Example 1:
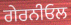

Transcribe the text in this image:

ਗੇਰਨੀਓਲ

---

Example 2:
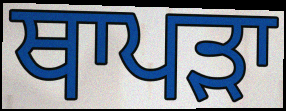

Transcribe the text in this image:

ਥਾਪੜਾ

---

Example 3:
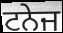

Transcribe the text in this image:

ਟਨੇਜ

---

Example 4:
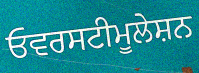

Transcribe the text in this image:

ਓਵਰਸਟੀਮੂਲੇਸ਼ਨ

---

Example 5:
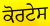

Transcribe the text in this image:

ਕੋਰਟੇਸ